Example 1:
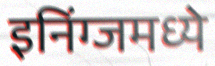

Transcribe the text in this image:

इनिंग्जमध्ये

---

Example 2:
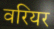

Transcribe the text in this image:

वरियर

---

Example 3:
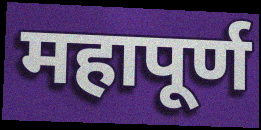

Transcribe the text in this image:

महापूर्ण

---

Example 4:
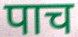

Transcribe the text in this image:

पाच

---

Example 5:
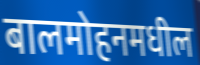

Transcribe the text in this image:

बालमोहनमधील